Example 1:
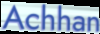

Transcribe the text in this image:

Achhan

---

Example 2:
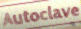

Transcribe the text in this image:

Autoclave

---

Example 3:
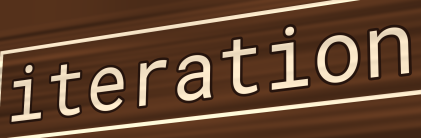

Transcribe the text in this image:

iteration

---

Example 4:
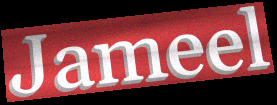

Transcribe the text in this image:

Jameel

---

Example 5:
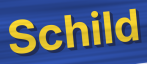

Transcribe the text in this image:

Schild